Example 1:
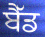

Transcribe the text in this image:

ਬੈੱਡ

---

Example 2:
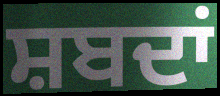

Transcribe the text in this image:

ਸ਼ਬਦਾਂ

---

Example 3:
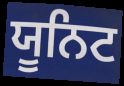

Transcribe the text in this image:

ਯੂਨਿਟ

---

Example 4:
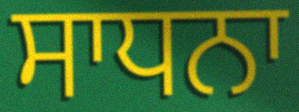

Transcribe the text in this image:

ਸਾਧਨਾ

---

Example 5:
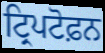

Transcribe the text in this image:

ਟ੍ਰਿਪਟੋਫ਼ਨ